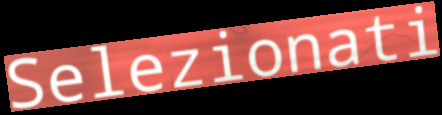
Selezionati